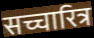
सच्चारित्र